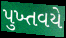
પુખ્તવયે